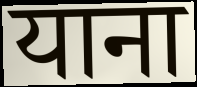
याना